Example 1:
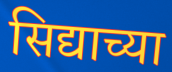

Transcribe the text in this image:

सिद्याच्या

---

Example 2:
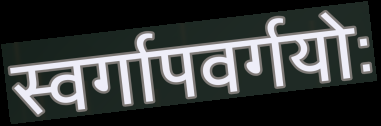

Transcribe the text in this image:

स्वर्गापवर्गयोः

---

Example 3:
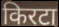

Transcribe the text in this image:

किरटा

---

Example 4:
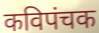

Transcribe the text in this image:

कविपंचक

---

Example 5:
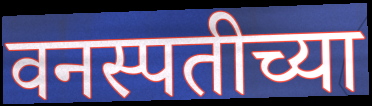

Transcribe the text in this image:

वनस्पतीच्या